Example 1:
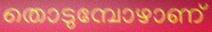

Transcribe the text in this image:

തൊടുമ്പോഴാണ്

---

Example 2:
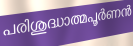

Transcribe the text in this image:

പരിശുദ്ധാത്മപൂർണൻ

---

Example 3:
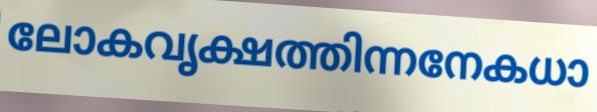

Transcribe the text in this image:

ലോകവൃക്ഷത്തിന്നനേകധാ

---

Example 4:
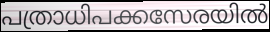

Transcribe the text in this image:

പത്രാധിപക്കസേരയിൽ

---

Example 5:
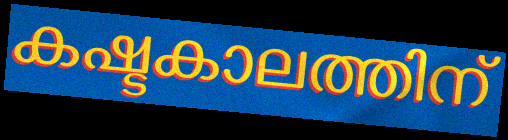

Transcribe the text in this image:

കഷ്ടകാലത്തിന്